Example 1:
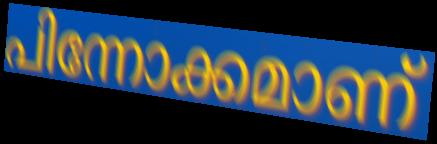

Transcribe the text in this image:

പിന്നോക്കമാണ്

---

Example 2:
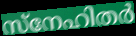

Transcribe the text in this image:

സ്നേഹിതർ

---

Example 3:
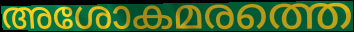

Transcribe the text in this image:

അശോകമരത്തെ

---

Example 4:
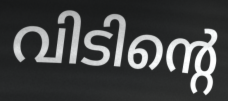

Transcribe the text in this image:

വിടിന്റെ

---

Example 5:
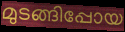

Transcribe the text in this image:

മുടങ്ങിപ്പോയ